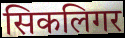
सिकलिगर